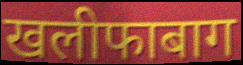
खलीफाबाग